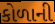
કોળાની